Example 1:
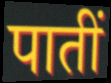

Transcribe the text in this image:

पातीं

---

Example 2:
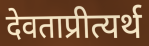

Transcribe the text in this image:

देवताप्रीत्यर्थ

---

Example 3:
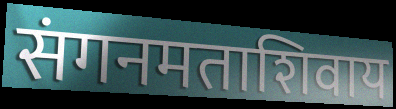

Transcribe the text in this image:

संगनमताशिवाय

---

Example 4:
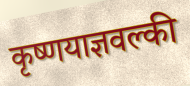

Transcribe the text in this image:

कृष्णयाज्ञवल्की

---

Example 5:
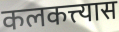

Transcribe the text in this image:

कलकत्त्यास